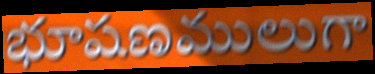
భూషణములుగా